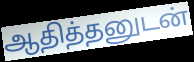
ஆதித்தனுடன்